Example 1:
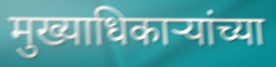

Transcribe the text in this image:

मुख्याधिकाऱ्यांच्या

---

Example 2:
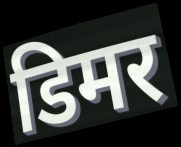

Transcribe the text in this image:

डिमर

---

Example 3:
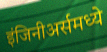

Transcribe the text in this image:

इंजिनीअर्समध्ये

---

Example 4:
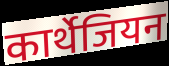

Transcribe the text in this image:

कार्थेजियन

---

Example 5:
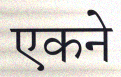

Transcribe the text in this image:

एकने